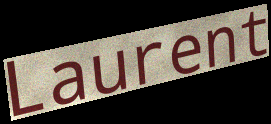
Laurent